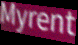
Myrent